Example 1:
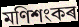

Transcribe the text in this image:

মণিশংকৰ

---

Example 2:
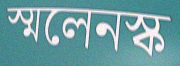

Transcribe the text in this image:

স্মলেনস্ক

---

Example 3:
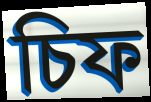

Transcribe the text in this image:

চিফ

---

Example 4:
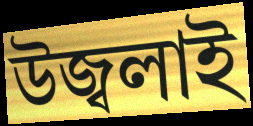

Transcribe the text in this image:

উজ্বলাই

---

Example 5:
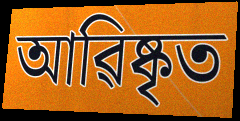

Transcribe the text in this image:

আৱিষ্কৃত